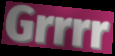
Grrrr